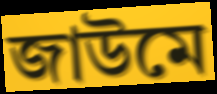
জাউমে